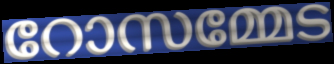
റോസമ്മേട